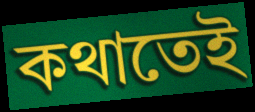
কথাতেই